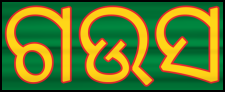
ଗଉସ